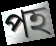
পহ